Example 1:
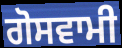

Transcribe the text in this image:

ਗੋਸਵਾਮੀ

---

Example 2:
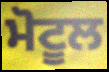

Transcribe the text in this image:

ਮੋਟੂਲ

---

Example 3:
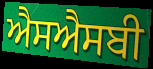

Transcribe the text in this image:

ਐਸਐਸਬੀ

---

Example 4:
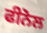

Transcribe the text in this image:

ਫੀਨੋਲ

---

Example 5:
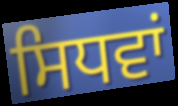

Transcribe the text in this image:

ਸਿਧਵਾਂ